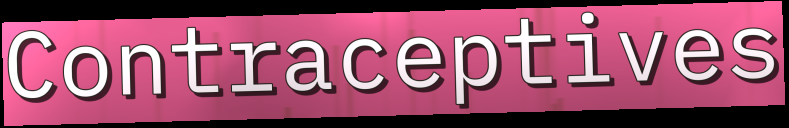
Contraceptives